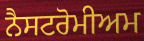
ਨੈਸਟਰੋਮੀਅਮ